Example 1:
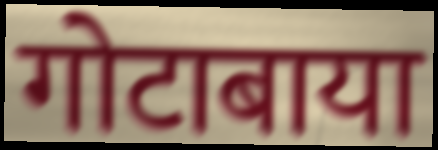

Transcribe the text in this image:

गोटाबाया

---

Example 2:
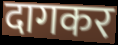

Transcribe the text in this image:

दागकर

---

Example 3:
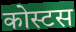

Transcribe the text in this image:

कोस्टस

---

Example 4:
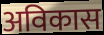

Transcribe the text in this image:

अविकास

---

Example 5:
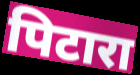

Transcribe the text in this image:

पिटारा